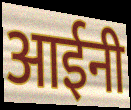
आईनी